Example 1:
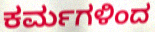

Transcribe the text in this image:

ಕರ್ಮಗಳಿಂದ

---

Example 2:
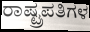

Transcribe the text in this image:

ರಾಷ್ಟ್ರಪತಿಗಳ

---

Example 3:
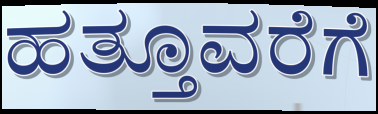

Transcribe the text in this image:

ಹತ್ತೂವರೆಗೆ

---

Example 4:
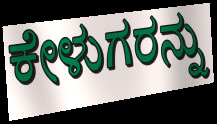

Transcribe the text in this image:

ಕೇಳುಗರನ್ನು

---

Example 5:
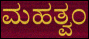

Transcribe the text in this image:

ಮಹತ್ವಂ